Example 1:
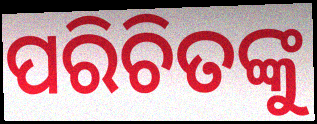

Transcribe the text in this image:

ପରିଚିତଙ୍କୁ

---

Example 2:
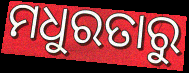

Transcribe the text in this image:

ମଧୁରତାରୁ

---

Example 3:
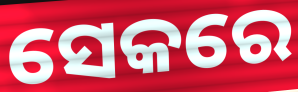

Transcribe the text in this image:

ସେକରେ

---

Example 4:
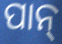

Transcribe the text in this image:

ପାନ୍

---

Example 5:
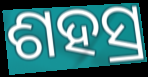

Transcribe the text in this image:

ଶହସ୍ର